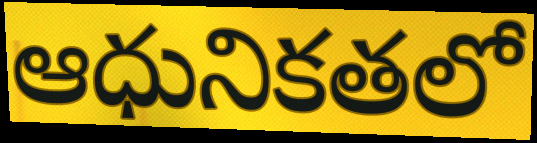
ఆధునికతలో